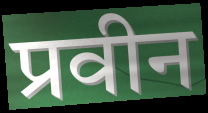
प्रवीन